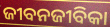
ଜୀବନଜୀବିକା